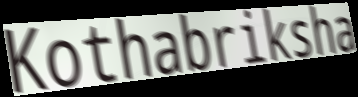
Kothabriksha